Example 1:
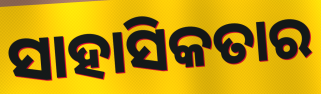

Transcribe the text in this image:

ସାହାସିକତାର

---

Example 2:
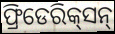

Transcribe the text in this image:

ଫ୍ରିଡେରିକ୍‌ସନ୍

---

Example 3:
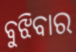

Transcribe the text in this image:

ବୁଝିବାର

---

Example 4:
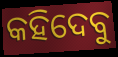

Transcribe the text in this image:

କହିଦେବୁ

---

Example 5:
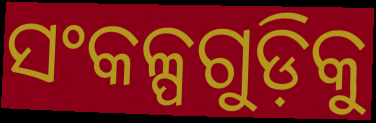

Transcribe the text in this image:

ସଂକଳ୍ପଗୁଡ଼ିକୁ